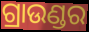
ଗ୍ରାଉଣ୍ଡର